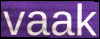
vaak